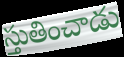
స్తుతించాడు